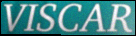
VISCAR